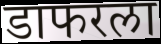
डाफरला